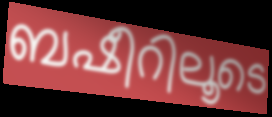
ബഷീറിലൂടെ